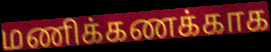
மணிக்கணக்காக